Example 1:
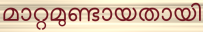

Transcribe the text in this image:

മാറ്റമുണ്ടായതായി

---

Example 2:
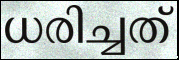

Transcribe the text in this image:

ധരിച്ചത്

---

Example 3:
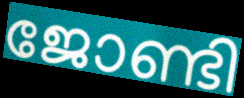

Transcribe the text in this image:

ജോണ്ടി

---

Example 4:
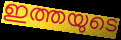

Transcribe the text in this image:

ഇത്തയുടെ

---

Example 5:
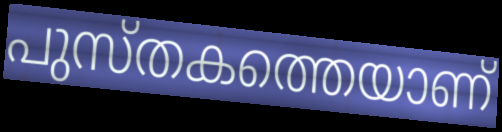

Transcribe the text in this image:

പുസ്തകത്തെയാണ്